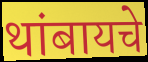
थांबायचे